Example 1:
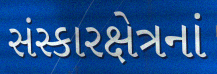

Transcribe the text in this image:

સંસ્કારક્ષેત્રનાં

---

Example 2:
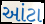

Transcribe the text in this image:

આંટા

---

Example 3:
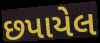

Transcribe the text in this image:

છપાયેલ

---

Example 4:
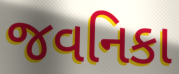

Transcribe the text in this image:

જવનિકા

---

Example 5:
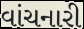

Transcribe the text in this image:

વાંચનારી